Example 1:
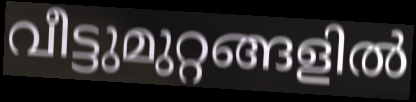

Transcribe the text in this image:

വീട്ടുമുറ്റങ്ങളിൽ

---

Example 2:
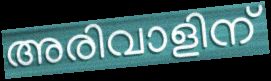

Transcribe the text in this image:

അരിവാളിന്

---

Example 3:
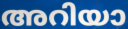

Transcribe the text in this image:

അറിയാ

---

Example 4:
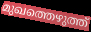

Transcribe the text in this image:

മുഖത്തെഴുത്ത്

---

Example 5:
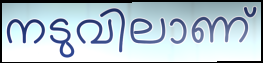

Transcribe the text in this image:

നടുവിലാണ്